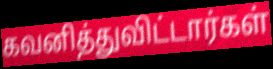
கவனித்துவிட்டார்கள்